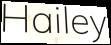
Hailey